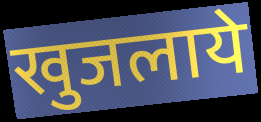
खुजलाये